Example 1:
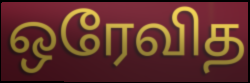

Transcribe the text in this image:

ஒரேவித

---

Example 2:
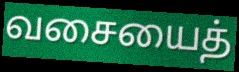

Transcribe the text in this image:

வசையைத்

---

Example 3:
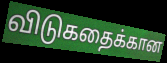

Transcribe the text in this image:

விடுகதைக்கான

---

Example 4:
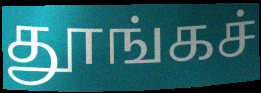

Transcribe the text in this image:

தூங்கச்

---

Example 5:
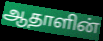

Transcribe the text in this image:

ஆதாளின்